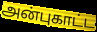
அன்புகாட்ட